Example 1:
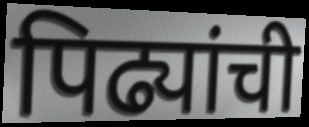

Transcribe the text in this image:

पिढ्यांची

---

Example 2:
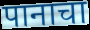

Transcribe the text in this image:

पानाचा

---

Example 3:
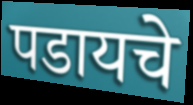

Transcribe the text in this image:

पडायचे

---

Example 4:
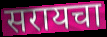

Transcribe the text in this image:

सरायचा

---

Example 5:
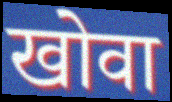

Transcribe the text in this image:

खोवा